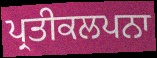
ਪ੍ਰਤੀਕਲਪਨਾ